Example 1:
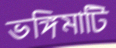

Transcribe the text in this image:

ভঙ্গিমাটি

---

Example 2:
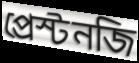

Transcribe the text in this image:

প্রেস্টনজি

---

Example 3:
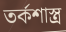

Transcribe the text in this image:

তর্কশাস্ত্র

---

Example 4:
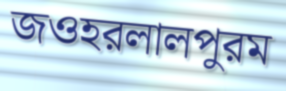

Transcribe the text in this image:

জওহরলালপুরম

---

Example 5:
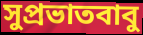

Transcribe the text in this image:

সুপ্রভাতবাবু